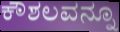
ಕೌಶಲವನ್ನೂ